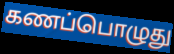
கணப்பொழுது